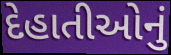
દેહાતીઓનું